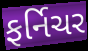
ફર્નિચર